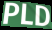
PLD